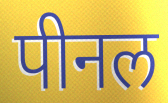
पीनल